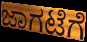
ಜಾಗಟೆಗೆ